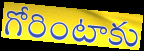
గోరింటాకు